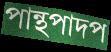
পান্থপাদপ